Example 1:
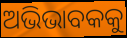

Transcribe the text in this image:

ଅଭିଭାବକକୁ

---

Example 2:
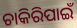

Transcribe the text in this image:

ଚାକିରିପାଇଁ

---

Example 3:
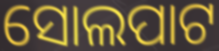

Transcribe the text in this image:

ସୋଲପାଟ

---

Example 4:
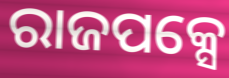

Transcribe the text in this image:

ରାଜପକ୍ସେ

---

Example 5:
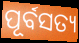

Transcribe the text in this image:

ପୂର୍ବସତ୍ୟ